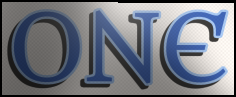
ONE